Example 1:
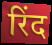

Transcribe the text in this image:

रिंद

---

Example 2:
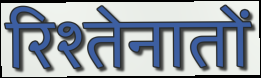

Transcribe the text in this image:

रिश्तेनातों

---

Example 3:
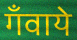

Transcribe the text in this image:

गँवाये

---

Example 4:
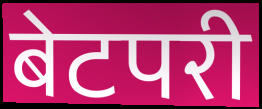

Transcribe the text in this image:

बेटपरी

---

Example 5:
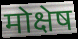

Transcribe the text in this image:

मोक्षेष